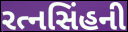
રત્નસિંહની